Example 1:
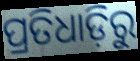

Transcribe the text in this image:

ପ୍ରତିଧାଡ଼ିରୁ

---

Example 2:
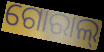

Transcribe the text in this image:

ଗୋରାଲ୍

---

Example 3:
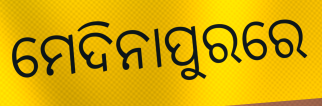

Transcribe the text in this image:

ମେଦିନାପୁରରେ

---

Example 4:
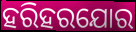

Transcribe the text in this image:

ହରିହରଯୋର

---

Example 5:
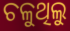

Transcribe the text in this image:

ଚଳୁଥିଲୁ